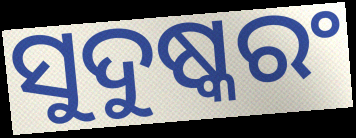
ସୁଦୁଷ୍କରଂ